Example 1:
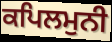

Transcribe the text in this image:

ਕਪਿਲਮੁਨੀ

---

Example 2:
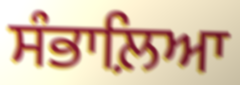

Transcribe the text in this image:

ਸੰਭਾਲ਼ਿਆ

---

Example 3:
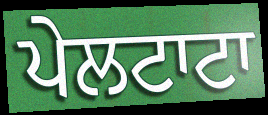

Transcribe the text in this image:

ਪੇਲਟਾਟਾ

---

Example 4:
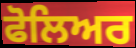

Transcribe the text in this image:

ਫੋਲਿਅਰ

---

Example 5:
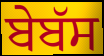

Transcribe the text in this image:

ਬੇਬੱਸ